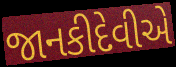
જાનકીદેવીએ